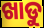
ଖାଡୁ